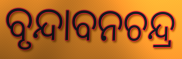
ବୃନ୍ଦାବନଚନ୍ଦ୍ର